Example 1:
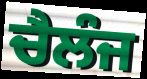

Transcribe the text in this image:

ਚੈਲੰਜ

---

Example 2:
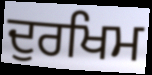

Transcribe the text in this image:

ਦੁਰਖਿਮ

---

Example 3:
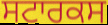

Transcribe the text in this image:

ਸਟਾਰਕਸ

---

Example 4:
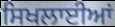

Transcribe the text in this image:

ਸਿਖਲਾਈਆਂ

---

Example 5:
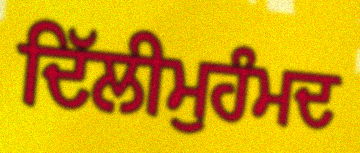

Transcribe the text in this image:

ਦਿੱਲੀਮੁਹੰਮਦ